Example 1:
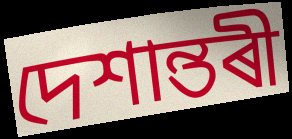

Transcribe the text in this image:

দেশান্তৰী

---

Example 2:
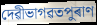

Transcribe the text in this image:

দেৱীভাগৱতপুৰাণ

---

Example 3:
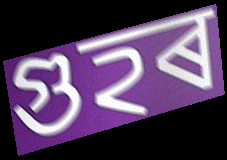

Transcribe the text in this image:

গুহৰ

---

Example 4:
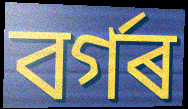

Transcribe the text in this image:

বৰ্গৰ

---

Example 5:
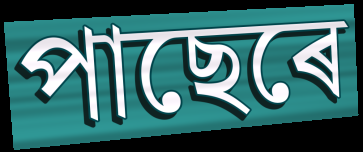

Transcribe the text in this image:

পাছেৰে